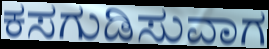
ಕಸಗುಡಿಸುವಾಗ